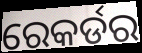
ରେକର୍ଡର